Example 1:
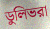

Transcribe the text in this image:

ডুলিভরা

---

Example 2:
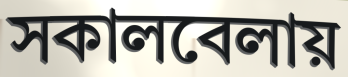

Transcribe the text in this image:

সকালবেলায়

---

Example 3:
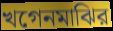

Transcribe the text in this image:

খগেনমাঝির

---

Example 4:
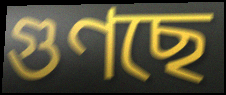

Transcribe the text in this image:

গুণছে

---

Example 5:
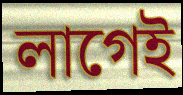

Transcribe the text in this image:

লাগেই